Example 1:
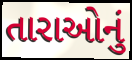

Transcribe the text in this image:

તારાઓનું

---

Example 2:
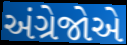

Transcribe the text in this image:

અંગ્રેજોએ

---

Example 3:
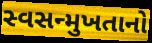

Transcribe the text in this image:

સ્વસન્મુખતાનો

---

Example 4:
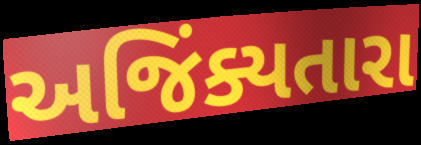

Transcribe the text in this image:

અજિંક્યતારા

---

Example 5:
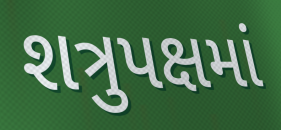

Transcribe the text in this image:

શત્રુપક્ષમાં